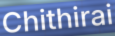
Chithirai